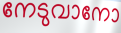
നേടുവാനോ